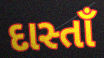
દાસ્તાઁ